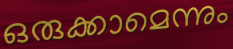
ഒരുക്കാമെന്നും